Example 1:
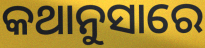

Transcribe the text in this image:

କଥାନୁସାରେ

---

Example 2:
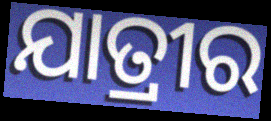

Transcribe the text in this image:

ଯାତ୍ରୀର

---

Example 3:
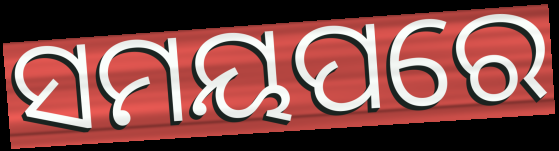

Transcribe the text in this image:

ସମୟପରେ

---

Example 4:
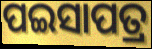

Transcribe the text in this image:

ପଇସାପତ୍ର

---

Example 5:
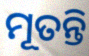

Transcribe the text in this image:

ମୂତନ୍ତି